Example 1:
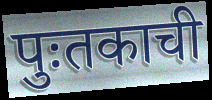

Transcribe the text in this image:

पुःतकाची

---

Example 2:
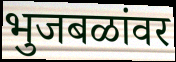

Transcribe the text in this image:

भुजबळांवर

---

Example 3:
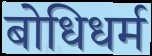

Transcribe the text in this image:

बोधिधर्म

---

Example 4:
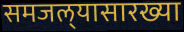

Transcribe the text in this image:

समजल्यासारख्या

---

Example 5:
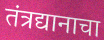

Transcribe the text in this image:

तंत्रद्यानाचा